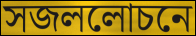
সজললোচনে